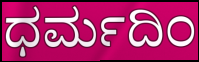
ಧರ್ಮದಿಂ